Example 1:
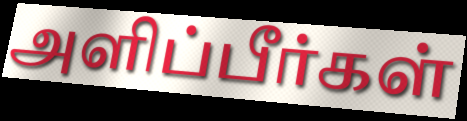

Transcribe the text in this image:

அளிப்பீர்கள்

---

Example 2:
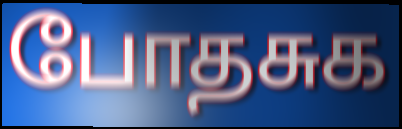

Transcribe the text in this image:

போதசுக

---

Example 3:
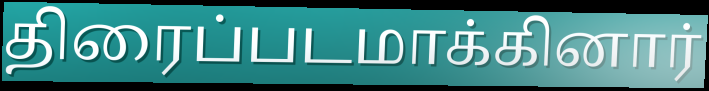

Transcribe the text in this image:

திரைப்படமாக்கினார்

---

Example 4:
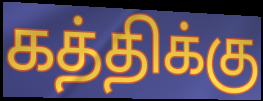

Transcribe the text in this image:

கத்திக்கு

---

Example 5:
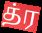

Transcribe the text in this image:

த்ர